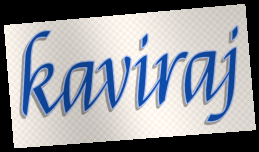
kaviraj